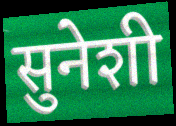
सुनेशी